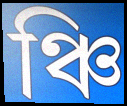
ঞ্চি